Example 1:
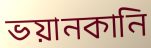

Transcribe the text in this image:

ভয়ানকানি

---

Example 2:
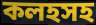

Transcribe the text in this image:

কলহসহ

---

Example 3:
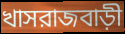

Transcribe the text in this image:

খাসরাজবাড়ী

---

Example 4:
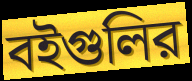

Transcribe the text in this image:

বইগুলির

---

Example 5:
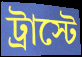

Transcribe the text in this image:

ট্রাস্টে